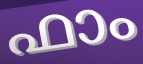
ഫാം